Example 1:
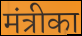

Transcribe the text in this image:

मंत्रीका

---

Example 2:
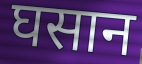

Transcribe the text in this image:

घसान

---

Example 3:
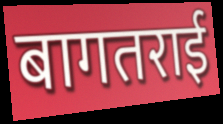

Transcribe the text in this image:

बागतराई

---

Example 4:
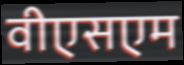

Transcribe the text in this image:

वीएसएम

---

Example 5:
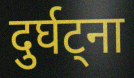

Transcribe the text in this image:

दुर्घट्ना